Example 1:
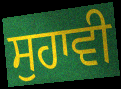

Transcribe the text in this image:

ਸੁਹਾਵੀ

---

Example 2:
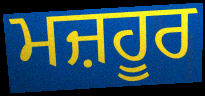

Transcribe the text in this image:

ਮਜ਼ਹੂਰ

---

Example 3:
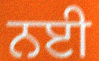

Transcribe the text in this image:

ਨਈ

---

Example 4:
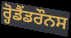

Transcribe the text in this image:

ਰ੍ਹੋਡੈਂਡਰੌਨਸ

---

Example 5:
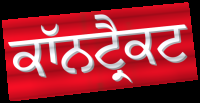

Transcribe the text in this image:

ਕਾੱਨਟ੍ਰੈਕਟ